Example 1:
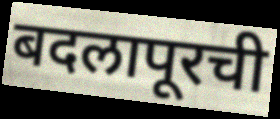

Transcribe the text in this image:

बदलापूरची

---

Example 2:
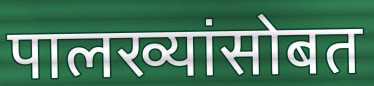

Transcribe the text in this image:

पालख्यांसोबत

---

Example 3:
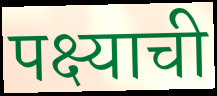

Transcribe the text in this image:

पक्ष्याची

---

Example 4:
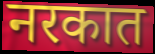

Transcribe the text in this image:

नरकात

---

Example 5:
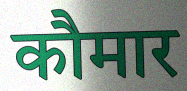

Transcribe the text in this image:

कौमार